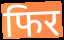
फिर